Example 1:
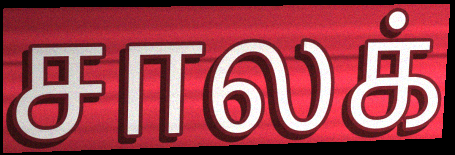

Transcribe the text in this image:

சாலக்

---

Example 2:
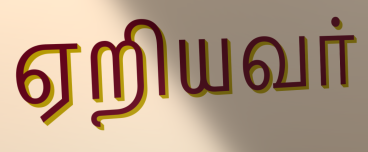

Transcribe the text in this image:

ஏறியவர்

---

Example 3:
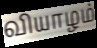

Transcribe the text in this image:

வியாழம்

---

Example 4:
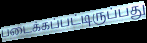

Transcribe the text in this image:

படைக்கப்பட்டிருப்பது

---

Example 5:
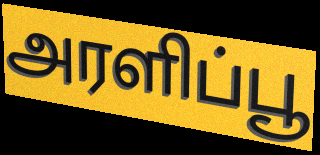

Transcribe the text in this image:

அரளிப்பூ